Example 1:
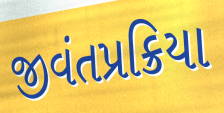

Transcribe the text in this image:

જીવંતપ્રક્રિયા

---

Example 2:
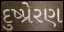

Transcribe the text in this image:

દુષ્પ્રેરણ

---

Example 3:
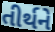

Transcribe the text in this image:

તીર્થને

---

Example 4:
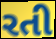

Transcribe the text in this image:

રતી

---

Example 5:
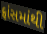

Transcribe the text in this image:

ફ્રાંસમાંથી